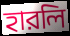
হারলি